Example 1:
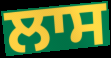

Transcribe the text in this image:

ਲਾਸ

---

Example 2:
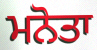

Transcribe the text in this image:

ਮਨੋਤਾ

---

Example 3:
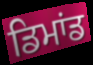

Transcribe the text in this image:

ਡਿਮਾਂਡ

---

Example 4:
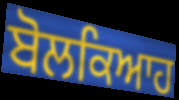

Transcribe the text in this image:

ਬੋਲਕਿਆਹ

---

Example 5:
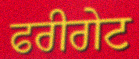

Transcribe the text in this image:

ਫਰੀਗੇਟ